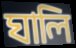
ঘালি